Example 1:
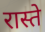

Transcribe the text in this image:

रास्ते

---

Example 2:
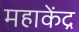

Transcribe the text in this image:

महाकेंद्र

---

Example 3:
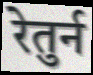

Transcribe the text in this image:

रेतुर्न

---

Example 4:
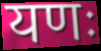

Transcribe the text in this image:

यणः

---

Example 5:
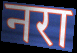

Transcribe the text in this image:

नरा